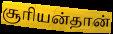
சூரியன்தான்